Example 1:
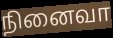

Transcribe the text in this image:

நினைவா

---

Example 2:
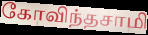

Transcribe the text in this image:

கோவிந்தசாமி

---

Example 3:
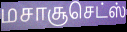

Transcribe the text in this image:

மசாசூசெட்ஸ்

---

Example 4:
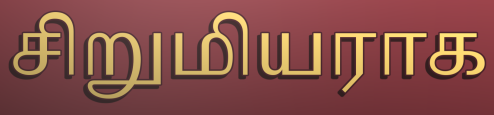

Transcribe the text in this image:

சிறுமியராக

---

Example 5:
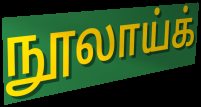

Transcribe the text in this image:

நூலாய்க்